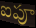
ఐపూ